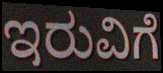
ಇರುವಿಗೆ